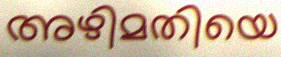
അഴിമതിയെ